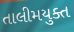
તાલીમયુક્ત